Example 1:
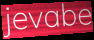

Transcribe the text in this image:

jevabe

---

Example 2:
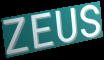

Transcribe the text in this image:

ZEUS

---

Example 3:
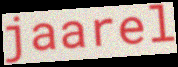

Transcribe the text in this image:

jaarel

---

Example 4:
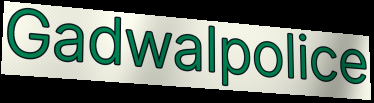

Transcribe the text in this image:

Gadwalpolice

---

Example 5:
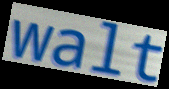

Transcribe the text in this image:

walt